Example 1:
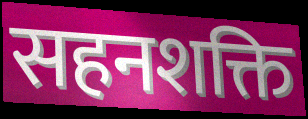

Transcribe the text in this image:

सहनशक्ति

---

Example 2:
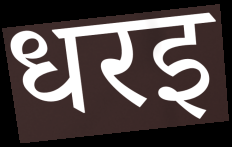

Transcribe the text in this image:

धरइ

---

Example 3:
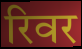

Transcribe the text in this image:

रिवर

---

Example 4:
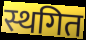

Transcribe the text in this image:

स्थगित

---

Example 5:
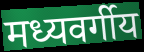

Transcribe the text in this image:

मध्यवर्गीय